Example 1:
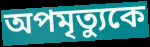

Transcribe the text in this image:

অপমৃত্যুকে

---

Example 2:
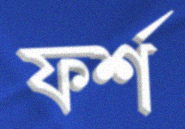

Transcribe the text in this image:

ফর্শ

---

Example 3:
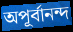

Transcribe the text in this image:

অপূর্বানন্দ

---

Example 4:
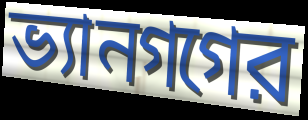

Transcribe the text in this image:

ভ্যানগগের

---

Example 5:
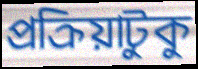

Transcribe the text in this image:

প্রক্রিয়াটুকু